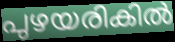
പുഴയരികിൽ